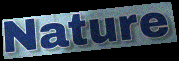
Nature